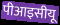
पीआइसीयू